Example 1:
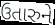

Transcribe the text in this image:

ઉતારુને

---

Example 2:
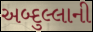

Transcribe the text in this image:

અબ્દુલ્લાની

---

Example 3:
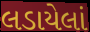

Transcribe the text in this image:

લડાયેલાં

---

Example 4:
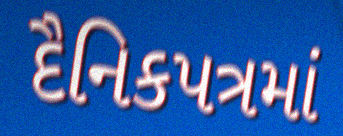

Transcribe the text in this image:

દૈનિકપત્રમાં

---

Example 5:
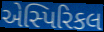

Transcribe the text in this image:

એસ્પિરિકલ